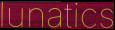
lunatics